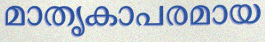
മാതൃകാപരമായ